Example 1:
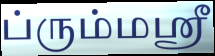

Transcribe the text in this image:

ப்ரும்மஸ்ரீ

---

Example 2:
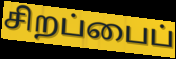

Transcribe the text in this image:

சிறப்பைப்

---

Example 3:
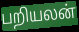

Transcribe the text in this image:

பறியலன்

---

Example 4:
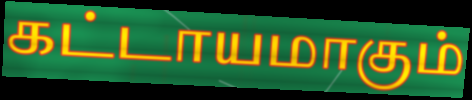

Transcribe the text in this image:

கட்டாயமாகும்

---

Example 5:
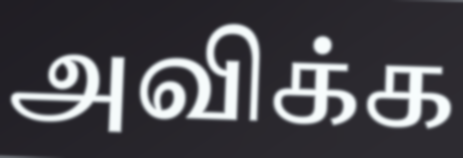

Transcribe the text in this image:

அவிக்க